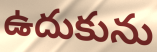
ఉదుకును